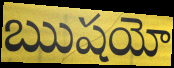
ఋషయో